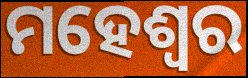
ମହେଶ୍ଵର